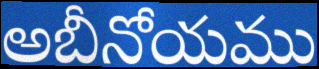
అబీనోయము